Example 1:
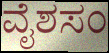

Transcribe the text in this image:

ವೈಶಸಂ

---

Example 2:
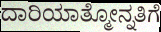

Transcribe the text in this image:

ದಾರಿಯಾತ್ಮೋನ್ನತಿಗೆ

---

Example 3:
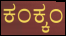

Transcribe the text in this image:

ಕಂಕ್ಕಂ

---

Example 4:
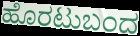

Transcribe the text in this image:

ಹೊರಟುಬಂದ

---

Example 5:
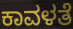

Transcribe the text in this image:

ಕಾವಳತೆ